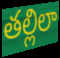
తల్లిలా